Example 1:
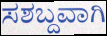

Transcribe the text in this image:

ಸಶಬ್ದವಾಗಿ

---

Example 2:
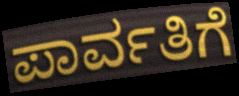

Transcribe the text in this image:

ಪಾರ್ವತಿಗೆ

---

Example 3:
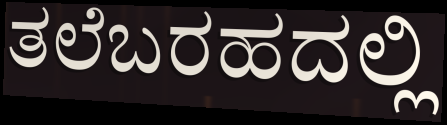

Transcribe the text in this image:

ತಲೆಬರಹದಲ್ಲಿ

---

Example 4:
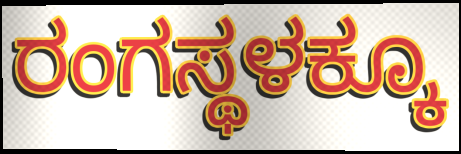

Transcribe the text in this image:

ರಂಗಸ್ಥಳಕ್ಕೂ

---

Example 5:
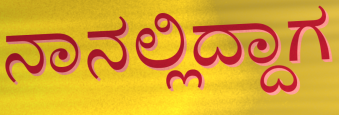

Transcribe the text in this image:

ನಾನಲ್ಲಿದ್ದಾಗ